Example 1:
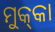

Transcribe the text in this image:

ମୁକ୍‌କା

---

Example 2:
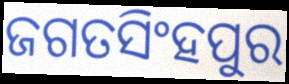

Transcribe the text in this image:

ଜଗତସିଂହପୁର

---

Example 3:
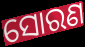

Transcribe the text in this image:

ସୋରଣ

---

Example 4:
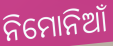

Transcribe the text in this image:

ନିମୋନିଆଁ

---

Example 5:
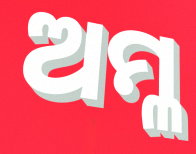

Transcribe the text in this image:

ଅମ୍ଳ